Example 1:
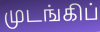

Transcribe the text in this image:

முடங்கிப்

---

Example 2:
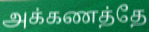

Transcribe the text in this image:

அக்கணத்தே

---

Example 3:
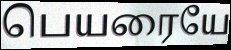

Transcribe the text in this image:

பெயரையே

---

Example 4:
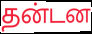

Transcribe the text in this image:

தன்டன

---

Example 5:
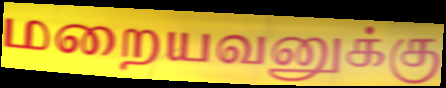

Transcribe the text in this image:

மறையவனுக்கு